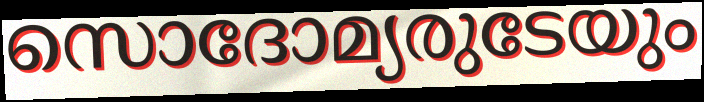
സൊദോമ്യരുടേയും